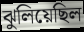
ঝুলিয়েছিল